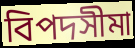
বিপদসীমা